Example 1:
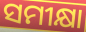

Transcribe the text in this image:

ସମୀକ୍ଷା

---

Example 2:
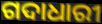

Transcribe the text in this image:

ଗଦାଧାରୀ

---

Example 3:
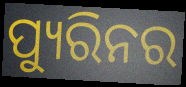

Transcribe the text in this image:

ପ୍ୟୁରିନର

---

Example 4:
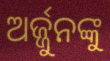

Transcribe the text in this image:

ଅର୍ଜ୍ଜୁନଙ୍କୁ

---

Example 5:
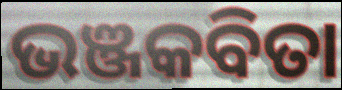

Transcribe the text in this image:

ଭଞ୍ଜକବିତା